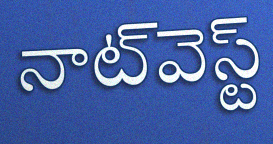
నాట్‌వెస్ట్